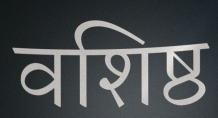
वशिष्ठ